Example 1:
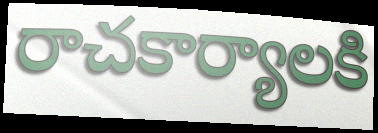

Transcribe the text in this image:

రాచకార్యాలకి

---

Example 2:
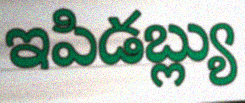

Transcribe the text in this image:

ఇపిడబ్ల్యు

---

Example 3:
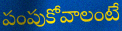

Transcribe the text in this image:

పంపుకోవాలంటే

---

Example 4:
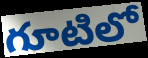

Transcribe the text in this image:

గూటిలో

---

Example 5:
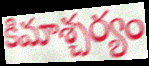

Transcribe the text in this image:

కిమాశ్చర్యం